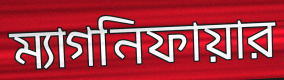
ম্যাগনিফায়ার